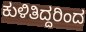
ಕುಳಿತಿದ್ದರಿಂದ